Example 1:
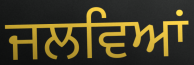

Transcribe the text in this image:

ਜਲਵਿਆਂ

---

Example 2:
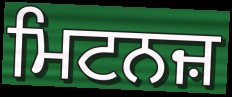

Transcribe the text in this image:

ਮਿਟਨਜ਼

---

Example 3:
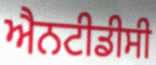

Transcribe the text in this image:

ਐਨਟੀਡੀਸੀ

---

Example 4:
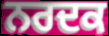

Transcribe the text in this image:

ਨਰਦਕ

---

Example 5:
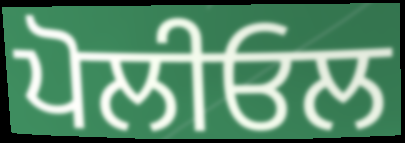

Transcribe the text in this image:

ਪੋਲੀਓਲ